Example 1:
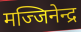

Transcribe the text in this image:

मज्जिनेन्द्र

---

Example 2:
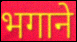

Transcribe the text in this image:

भगाने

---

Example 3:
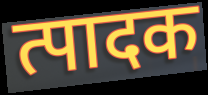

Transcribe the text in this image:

त्पादक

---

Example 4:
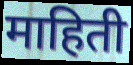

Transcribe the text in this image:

माहिती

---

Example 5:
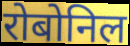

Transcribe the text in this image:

रोबोनिल